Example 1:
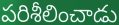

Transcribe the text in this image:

పరిశీలించాడు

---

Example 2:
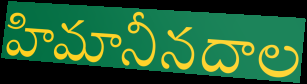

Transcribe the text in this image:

హిమానీనదాల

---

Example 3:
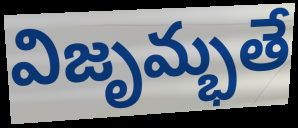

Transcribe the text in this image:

విజృమ్భతే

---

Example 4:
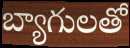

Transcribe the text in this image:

బ్యాగులతో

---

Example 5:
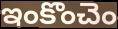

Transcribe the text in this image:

ఇంకొంచెం